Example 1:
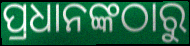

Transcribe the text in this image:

ପ୍ରଧାନଙ୍କଠାରୁ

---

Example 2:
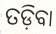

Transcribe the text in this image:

ତଡ଼ିବା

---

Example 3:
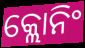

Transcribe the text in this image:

କ୍ଲୋନିଂ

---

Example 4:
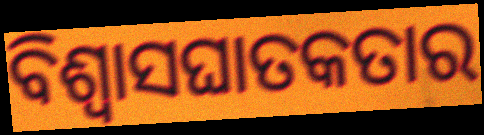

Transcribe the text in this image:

ବିଶ୍ୱାସଘାତକତାର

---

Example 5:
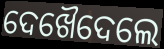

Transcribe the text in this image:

ଦେଖୈଦେଲେ